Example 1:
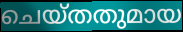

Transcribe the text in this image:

ചെയ്തതുമായ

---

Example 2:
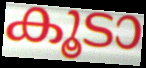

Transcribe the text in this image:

കൂടാ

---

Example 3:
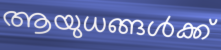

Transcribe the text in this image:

ആയുധങ്ങൾക്ക്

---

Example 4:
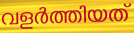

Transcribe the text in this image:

വളർത്തിയത്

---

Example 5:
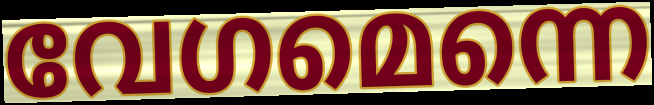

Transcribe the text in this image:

വേഗമെന്നെ